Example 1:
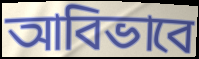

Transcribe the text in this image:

আবিভাবে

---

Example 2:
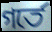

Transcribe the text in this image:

গর্তে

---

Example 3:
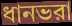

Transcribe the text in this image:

ধানভরা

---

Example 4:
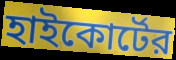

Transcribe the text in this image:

হাইকোর্টের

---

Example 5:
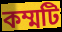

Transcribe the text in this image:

কম্মটি